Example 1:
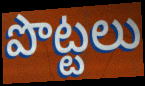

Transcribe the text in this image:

పొట్టలు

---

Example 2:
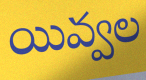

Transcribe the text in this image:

యివ్వల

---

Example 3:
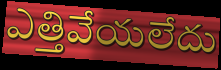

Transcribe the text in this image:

ఎత్తివేయలేదు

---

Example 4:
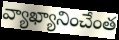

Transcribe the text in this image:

వ్యాఖ్యానించేంత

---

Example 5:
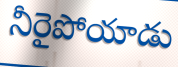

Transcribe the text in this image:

నీరైపోయాడు